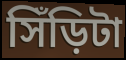
সিঁড়িটা